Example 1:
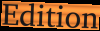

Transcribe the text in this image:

Edition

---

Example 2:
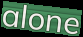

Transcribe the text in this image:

alone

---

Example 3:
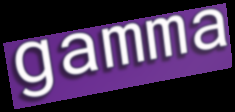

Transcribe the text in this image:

gamma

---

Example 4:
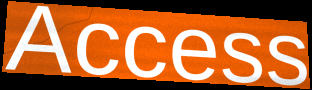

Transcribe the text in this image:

Access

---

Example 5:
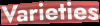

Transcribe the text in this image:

Varieties